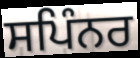
ਸਪਿੰਨਰ